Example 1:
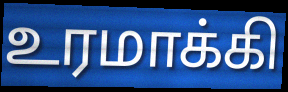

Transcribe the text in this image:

உரமாக்கி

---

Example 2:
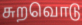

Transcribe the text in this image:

சுறவொடு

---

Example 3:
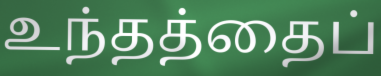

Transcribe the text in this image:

உந்தத்தைப்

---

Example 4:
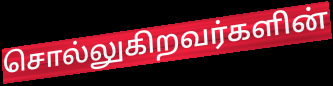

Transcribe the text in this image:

சொல்லுகிறவர்களின்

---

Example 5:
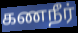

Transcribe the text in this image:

கணநீர்